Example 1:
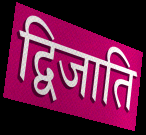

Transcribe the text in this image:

द्विजाति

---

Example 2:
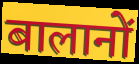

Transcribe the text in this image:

बालानों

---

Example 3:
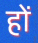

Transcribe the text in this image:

हों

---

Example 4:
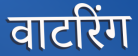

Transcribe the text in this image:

वाटरिंग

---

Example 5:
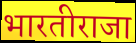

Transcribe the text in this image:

भारतीराजा